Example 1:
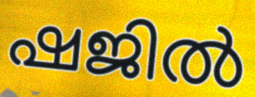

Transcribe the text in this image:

ഷജിൽ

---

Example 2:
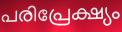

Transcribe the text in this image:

പരിപ്രേക്ഷ്യം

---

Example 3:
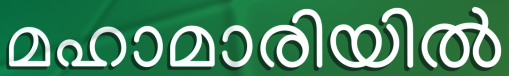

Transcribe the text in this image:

മഹാമാരിയിൽ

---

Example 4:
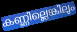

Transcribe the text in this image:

കണ്ണില്ലെങ്കിലും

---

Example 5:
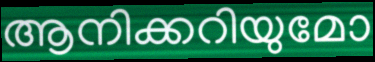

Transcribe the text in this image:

ആനിക്കറിയുമോ